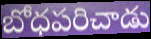
బోధపరిచాడు